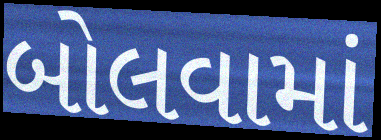
બોલવામાં